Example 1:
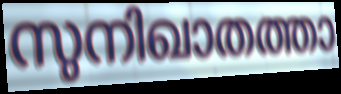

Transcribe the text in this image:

സുനിഖാതത്താ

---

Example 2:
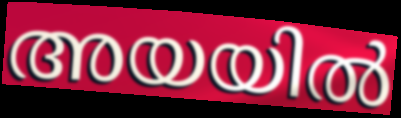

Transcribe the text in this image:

അയയിൽ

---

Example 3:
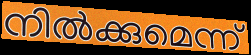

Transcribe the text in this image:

നിൽക്കുമെന്ന്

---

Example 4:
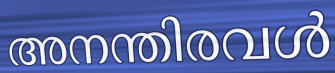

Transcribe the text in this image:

അനന്തിരവൾ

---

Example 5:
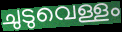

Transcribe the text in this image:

ചുടുവെള്ളം